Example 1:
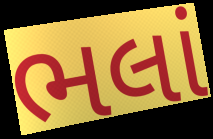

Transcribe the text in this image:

ભલાં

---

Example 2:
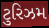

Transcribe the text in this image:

ટુરિઝમ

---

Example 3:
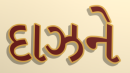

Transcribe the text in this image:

દાઝને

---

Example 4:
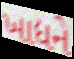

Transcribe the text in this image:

ખાદ્યને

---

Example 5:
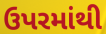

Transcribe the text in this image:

ઉપરમાંથી